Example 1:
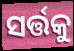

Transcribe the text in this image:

ସର୍ତ୍ତକୁ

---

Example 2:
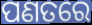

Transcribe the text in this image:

ପଣତରେ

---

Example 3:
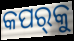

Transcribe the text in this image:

କପର୍‌କୁ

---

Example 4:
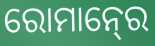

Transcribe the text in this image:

ରୋମାନ୍‍ରେ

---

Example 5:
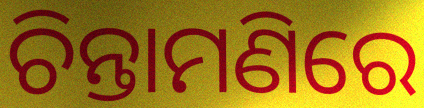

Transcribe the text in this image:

ଚିନ୍ତାମଣିରେ